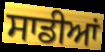
ਸਾਡੀਆਂ